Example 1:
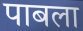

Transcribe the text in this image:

पाबला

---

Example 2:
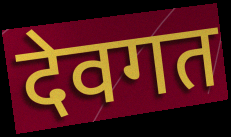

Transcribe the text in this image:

देवगत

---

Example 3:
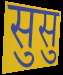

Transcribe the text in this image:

सुसु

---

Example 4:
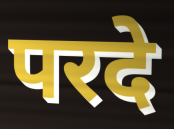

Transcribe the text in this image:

परदे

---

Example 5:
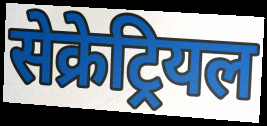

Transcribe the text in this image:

सेक्रेट्रियल